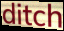
ditch